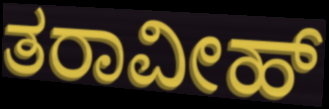
ತರಾವೀಹ್